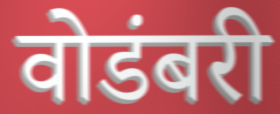
वोडंबरी